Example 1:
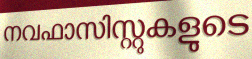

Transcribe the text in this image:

നവഫാസിസ്റ്റുകളുടെ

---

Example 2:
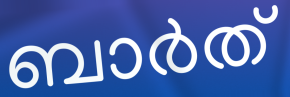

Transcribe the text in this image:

ബാർത്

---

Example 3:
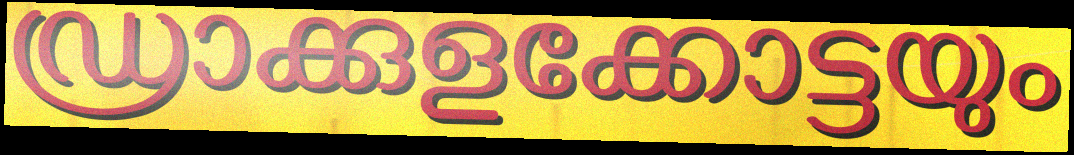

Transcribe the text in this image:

ഡ്രാക്കുളക്കോട്ടയും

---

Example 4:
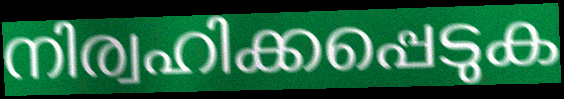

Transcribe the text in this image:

നിര്വഹിക്കപ്പെടുക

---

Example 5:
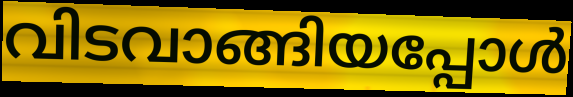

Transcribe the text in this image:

വിടവാങ്ങിയപ്പോൾ